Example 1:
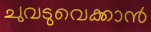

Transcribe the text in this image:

ചുവടുവെക്കാൻ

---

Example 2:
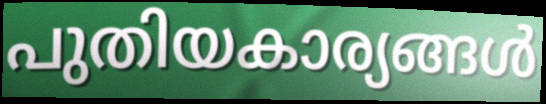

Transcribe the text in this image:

പുതിയകാര്യങ്ങൾ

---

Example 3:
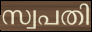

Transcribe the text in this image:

സ്വപതി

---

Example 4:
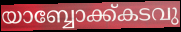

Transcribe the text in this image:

യാബ്ബോക്ക്കടവു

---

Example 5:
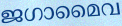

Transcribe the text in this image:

ജഗാമൈവ